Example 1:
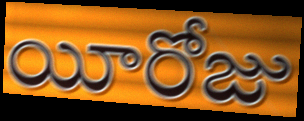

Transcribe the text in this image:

యీరోజు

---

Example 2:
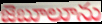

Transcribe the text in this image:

జెబూలూను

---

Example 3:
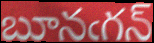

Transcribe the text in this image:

బూనఁగన్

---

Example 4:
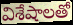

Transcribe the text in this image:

విశేషాలతో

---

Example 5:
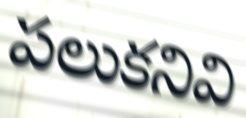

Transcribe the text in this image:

పలుకనివి